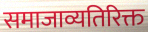
समाजाव्यतिरिक्त